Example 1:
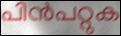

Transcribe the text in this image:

പിൻപറ്റുക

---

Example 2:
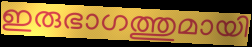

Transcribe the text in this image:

ഇരുഭാഗത്തുമായി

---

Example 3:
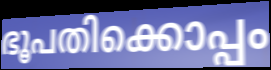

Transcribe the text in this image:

ഭൂപതിക്കൊപ്പം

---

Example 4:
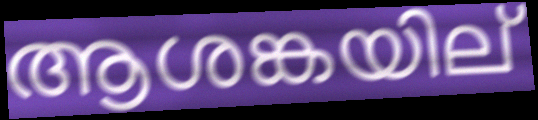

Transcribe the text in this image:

ആശങ്കയില്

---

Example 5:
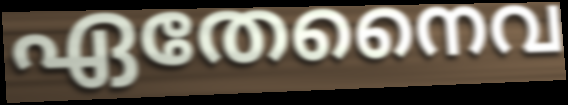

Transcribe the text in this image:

ഏതേനൈവ